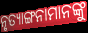
ନୃତ୍ୟାଙ୍ଗନାମାନଙ୍କୁ